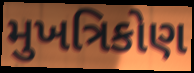
મુખત્રિકોણ